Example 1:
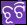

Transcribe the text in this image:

ଚୂଟି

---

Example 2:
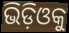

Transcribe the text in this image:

ଭିଡ଼ିଓକୁ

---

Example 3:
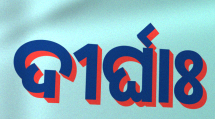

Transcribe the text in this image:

ଦୀର୍ଘାଃ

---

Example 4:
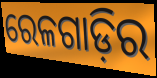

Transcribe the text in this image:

ରେଳଗାଡ଼ିର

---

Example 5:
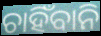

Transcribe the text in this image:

ଚାହିଁବାନି